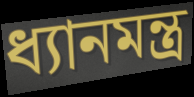
ধ্যানমন্ত্র